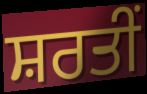
ਸ਼ਰਤੀਂ